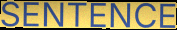
SENTENCE